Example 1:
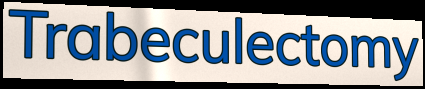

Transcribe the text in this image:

Trabeculectomy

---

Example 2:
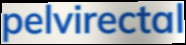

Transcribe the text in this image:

pelvirectal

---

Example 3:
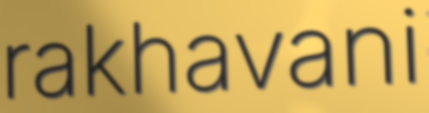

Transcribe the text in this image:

rakhavani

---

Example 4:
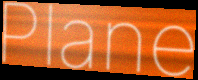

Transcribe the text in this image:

Plane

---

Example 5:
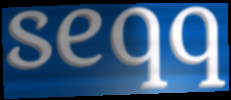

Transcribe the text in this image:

seqq